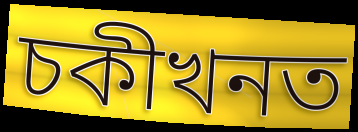
চকীখনত